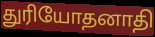
துரியோதனாதி